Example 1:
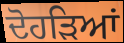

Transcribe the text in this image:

ਦੋਹੜਿਆਂ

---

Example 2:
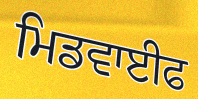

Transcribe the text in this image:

ਮਿਡਵਾਈਫ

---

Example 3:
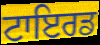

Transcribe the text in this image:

ਟਾਇਰਡ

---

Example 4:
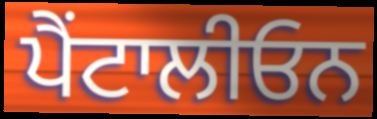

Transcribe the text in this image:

ਪੈਂਟਾਲੀਓਨ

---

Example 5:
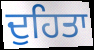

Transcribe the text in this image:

ਦੁਹਿਤਾ